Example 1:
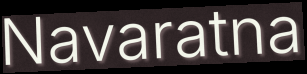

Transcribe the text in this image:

Navaratna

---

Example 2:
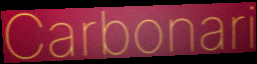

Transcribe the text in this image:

Carbonari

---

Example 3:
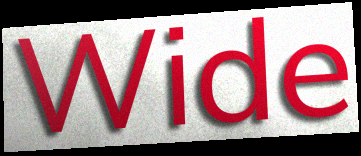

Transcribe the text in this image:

Wide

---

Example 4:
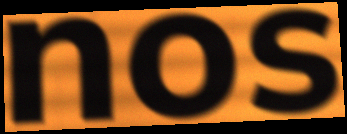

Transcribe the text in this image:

nos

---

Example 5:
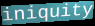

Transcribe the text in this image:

iniquity